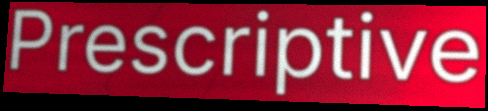
Prescriptive